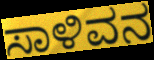
ಸಾಳಿವನ